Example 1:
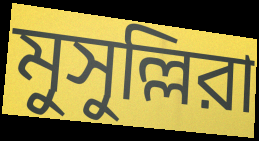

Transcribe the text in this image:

মুসুল্লিরা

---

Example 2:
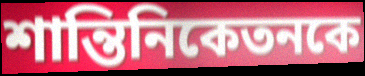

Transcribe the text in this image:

শান্তিনিকেতনকে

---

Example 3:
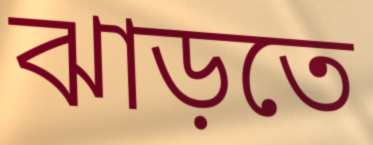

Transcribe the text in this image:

ঝাড়তে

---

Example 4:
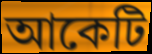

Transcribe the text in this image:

আকেটি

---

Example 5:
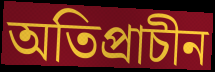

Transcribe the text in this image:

অতিপ্রাচীন